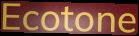
Ecotone